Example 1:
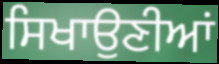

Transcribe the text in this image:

ਸਿਖਾਉਣੀਆਂ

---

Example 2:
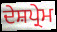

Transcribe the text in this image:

ਦੇਸ਼ਪ੍ਰੇਮ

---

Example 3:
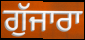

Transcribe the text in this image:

ਗੁੱਜਾਰਾ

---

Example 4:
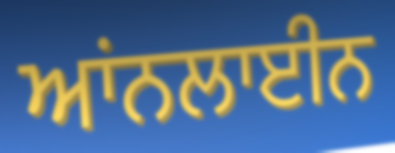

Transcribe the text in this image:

ਆਂਨਲਾਈਨ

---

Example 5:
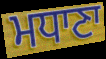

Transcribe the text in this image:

ਮਧਾਣਾ